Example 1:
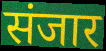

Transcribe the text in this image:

संजार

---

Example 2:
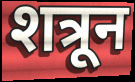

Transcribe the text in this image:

शत्रून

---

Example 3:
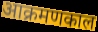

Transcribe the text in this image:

आक्रमणकाल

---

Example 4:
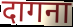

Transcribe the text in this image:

दागना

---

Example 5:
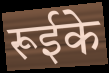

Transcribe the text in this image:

रूईके